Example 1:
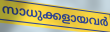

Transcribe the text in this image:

സാധുക്കളായവർ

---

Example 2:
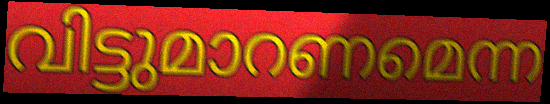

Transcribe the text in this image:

വിട്ടുമാറണമെന്ന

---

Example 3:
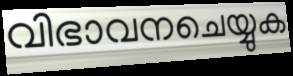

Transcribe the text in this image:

വിഭാവനചെയ്യുക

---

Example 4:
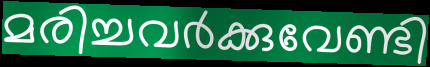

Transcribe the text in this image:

മരിച്ചവർക്കുവേണ്ടി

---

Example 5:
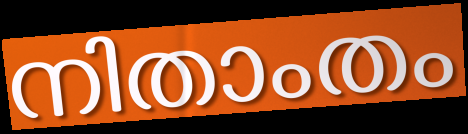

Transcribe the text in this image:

നിതാംതം